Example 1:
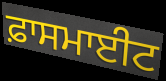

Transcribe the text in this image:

ਫ਼ਾਸਮਾਈਟ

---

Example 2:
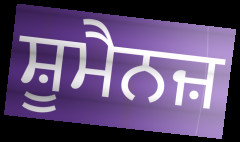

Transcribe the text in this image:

ਸ਼ੂਮੈਨਜ਼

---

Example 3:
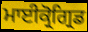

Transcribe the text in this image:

ਮਾਈਕ੍ਰੋਗ੍ਰਿਡ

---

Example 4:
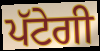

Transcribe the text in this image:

ਪੱਟੇਗੀ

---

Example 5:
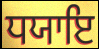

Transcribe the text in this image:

ਧਯਾਇ